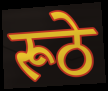
रूठे